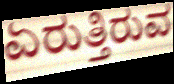
ಏರುತ್ತಿರುವ